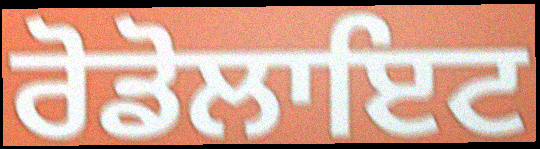
ਰੋਡੋਲਾਇਟ